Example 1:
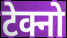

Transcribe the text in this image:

टेक्नो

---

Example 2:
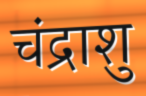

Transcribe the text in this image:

चंद्राशु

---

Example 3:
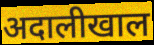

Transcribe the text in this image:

अदालीखाल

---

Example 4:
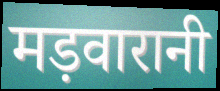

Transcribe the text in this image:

मड़वारानी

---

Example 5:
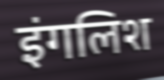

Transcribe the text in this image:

इंगलिश